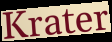
Krater